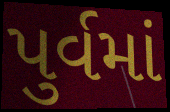
પુર્વમાં